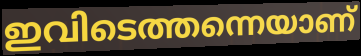
ഇവിടെത്തന്നെയാണ്